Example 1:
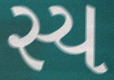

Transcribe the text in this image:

સ્ય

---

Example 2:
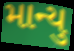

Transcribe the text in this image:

માન્યુ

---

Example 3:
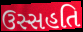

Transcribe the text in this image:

ઉસ્સહતિ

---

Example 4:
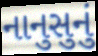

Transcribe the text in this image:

નાનુસુનું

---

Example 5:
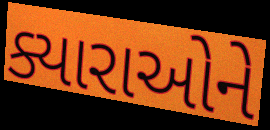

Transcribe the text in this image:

ક્યારાઓને